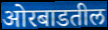
ओरबाडतील